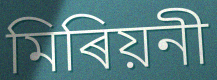
মিৰিয়নী